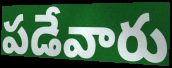
పడేవారు